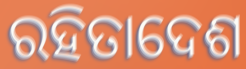
ରହିତାଦେଶ